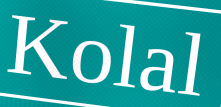
Kolal